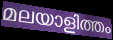
മലയാളിത്തം